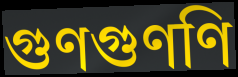
গুণগুণণি